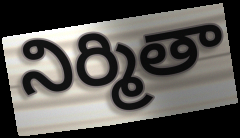
నిర్మితా